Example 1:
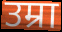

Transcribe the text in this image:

उम्रा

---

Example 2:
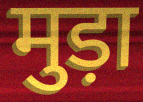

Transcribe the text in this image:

मुड़ा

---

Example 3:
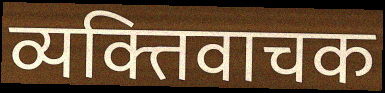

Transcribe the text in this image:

व्यक्तिवाचक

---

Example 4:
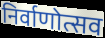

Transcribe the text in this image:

निर्वाणोत्सव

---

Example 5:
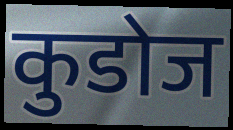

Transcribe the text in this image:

कुडोज